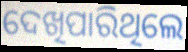
ଦେଖିପାରିଥିଲେ